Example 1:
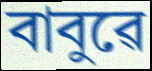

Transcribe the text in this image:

বাবুৱে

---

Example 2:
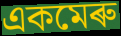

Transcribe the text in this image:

একমেৰু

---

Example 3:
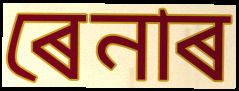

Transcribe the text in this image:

ৰেনাৰ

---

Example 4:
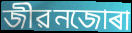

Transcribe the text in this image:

জীৱনজোৰা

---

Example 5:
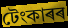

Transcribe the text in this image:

টেংকাৰৰ